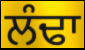
ਲੰਢਾ